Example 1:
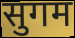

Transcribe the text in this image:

सुगम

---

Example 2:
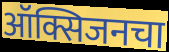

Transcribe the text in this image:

ऑक्सिजनचा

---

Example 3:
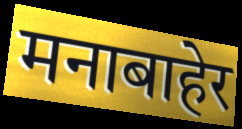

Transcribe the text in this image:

मनाबाहेर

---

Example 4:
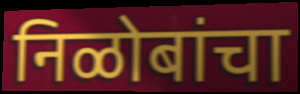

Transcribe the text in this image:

निळोबांचा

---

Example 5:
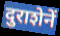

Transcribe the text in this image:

दुराशेनें